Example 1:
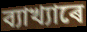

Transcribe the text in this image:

ব্যাখ্যাৰে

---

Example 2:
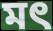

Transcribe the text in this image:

মৎ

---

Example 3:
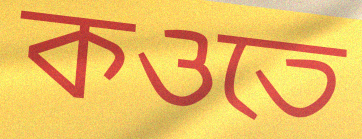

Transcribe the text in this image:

কওতে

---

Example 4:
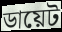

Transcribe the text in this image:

ডায়েট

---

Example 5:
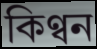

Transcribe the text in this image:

কিণ্বন